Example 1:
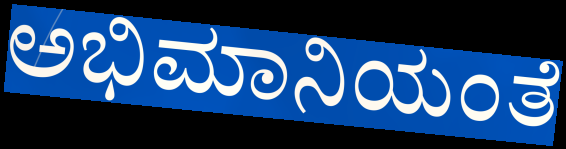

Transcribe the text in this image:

ಅಭಿಮಾನಿಯಂತೆ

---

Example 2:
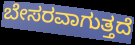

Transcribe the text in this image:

ಬೇಸರವಾಗುತ್ತದೆ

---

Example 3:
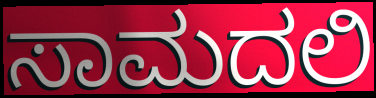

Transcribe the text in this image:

ಸಾಮದಲಿ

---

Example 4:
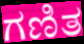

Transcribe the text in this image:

ಗಣಿತ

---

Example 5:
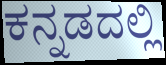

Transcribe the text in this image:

ಕನ್ನಡದಲ್ಲಿ